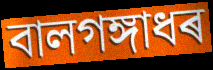
বালগঙ্গাধৰ